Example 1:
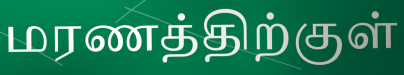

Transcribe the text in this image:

மரணத்திற்குள்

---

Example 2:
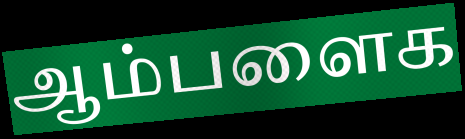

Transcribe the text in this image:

ஆம்பளைக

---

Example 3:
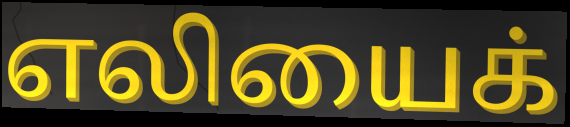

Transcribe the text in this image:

எலியைக்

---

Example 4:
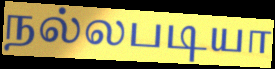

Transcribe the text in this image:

நல்லபடியா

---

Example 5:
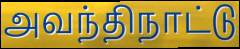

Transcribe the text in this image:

அவந்திநாட்டு